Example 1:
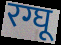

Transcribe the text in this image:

रग्घू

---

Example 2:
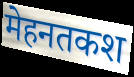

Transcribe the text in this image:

मेहनतकश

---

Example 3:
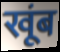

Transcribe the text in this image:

खूंब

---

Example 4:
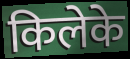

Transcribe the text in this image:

किलेके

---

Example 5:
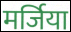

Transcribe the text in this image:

मर्जिया